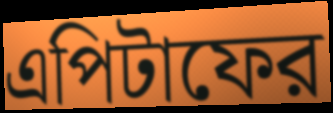
এপিটাফের